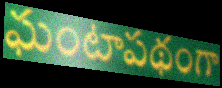
ఘంటాపథంగా